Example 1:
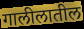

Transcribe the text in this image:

गालीलातील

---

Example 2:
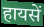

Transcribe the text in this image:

हायसें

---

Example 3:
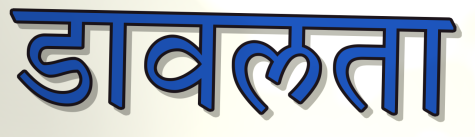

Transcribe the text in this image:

डावलता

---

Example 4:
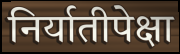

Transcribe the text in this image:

निर्यातीपेक्षा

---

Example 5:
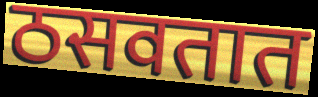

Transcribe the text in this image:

ठसवतात